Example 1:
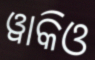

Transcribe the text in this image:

ୱାକିଓ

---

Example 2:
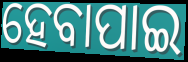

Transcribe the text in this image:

ହେବାପାଇ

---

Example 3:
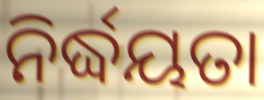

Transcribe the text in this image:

ନିର୍ଦ୍ଧୟତା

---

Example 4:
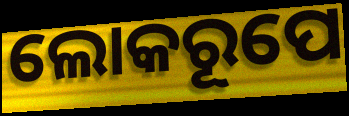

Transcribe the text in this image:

ଲୋକରୂପେ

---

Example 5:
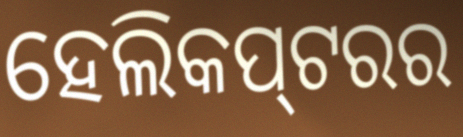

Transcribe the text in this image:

ହେଲିକପ୍‌ଟରର